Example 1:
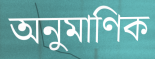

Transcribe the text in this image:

অনুমাণিক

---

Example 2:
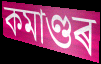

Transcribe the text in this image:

কমাণ্ডৰ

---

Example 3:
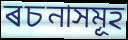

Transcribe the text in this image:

ৰচনাসমূহ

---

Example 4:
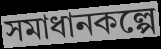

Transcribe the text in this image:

সমাধানকল্পে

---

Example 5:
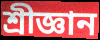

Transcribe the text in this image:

শ্ৰীজ্ঞান